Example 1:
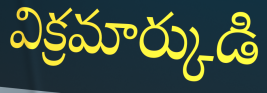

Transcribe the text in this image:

విక్రమార్కుడి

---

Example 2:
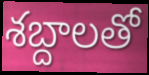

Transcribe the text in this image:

శబ్దాలతో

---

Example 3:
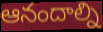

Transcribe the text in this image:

ఆనందాల్ని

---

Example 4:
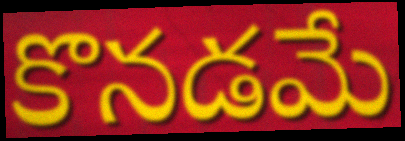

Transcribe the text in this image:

కొనడమే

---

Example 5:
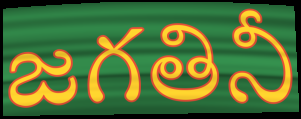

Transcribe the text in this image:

జగతినీ